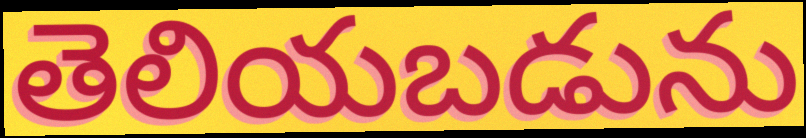
తెలియబడును